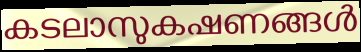
കടലാസുകഷണങ്ങൾ